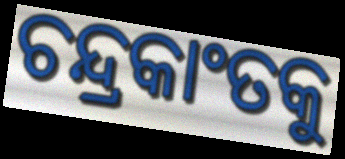
ଚନ୍ଦ୍ରକାଂତକୁ